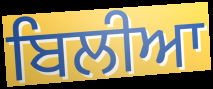
ਬਿਲੀਆ